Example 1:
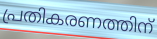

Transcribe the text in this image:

പ്രതികരണത്തിന്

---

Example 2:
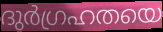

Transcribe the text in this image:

ദുർഗ്രഹതയെ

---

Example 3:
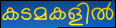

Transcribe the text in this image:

കടമകളിൽ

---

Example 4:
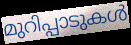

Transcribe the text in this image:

മുറിപ്പാടുകൾ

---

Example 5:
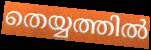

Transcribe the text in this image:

തെയ്യത്തിൽ